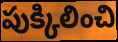
పుక్కిలించి